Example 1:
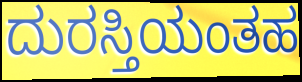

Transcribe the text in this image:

ದುರಸ್ತಿಯಂತಹ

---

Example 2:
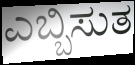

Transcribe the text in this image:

ಎಬ್ಬಿಸುತ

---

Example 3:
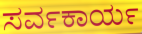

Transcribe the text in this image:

ಸರ್ವಕಾರ್ಯ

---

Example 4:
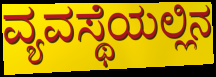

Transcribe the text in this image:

ವ್ಯವಸ್ಥೆಯಲ್ಲಿನ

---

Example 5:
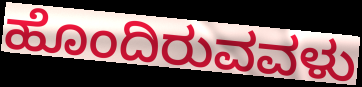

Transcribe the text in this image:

ಹೊಂದಿರುವವಳು